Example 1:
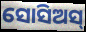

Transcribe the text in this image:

ସୋସିଅସ୍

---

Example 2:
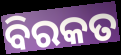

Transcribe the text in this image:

ବିରକତ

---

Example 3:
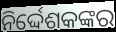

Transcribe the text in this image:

ନିର୍ଦ୍ଦେଶକଙ୍କର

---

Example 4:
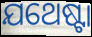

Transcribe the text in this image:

ଯଥେଷ୍ଟା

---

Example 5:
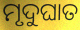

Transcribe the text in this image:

ମୃଦୁଘାତ